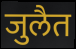
जुलैत